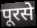
पूरसे